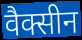
वैक्सीन